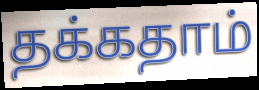
தக்கதாம்